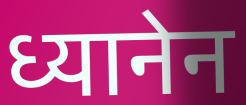
ध्यानेन